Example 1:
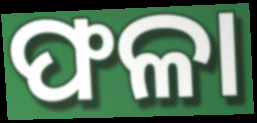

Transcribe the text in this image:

ଫଳା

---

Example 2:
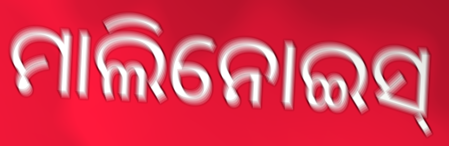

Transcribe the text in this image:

ମାଲିନୋଇସ୍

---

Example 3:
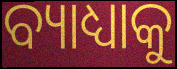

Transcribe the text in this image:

ବ୍ୟାଧ୍ୟାକୁ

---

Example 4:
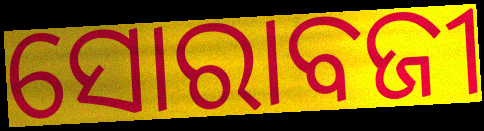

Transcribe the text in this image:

ସୋରାବଜୀ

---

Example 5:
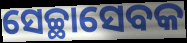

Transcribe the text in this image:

ସେଚ୍ଛାସେବକ